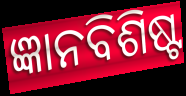
ଜ୍ଞାନବିଶିଷ୍ଟ